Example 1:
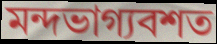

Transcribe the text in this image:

মন্দভাগ্যবশত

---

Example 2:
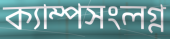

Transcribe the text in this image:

ক্যাম্পসংলগ্ন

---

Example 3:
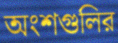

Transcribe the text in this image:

অংশগুলির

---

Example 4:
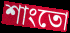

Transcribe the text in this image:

শাংতো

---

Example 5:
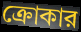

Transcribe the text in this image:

ক্রোকার